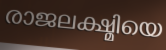
രാജലക്ഷ്മിയെ